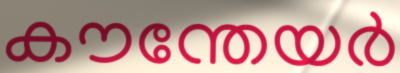
കൗന്തേയർ